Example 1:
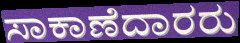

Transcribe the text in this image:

ಸಾಕಾಣೆದಾರರು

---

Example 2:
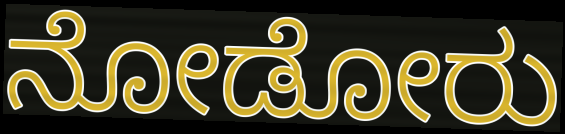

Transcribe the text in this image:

ನೋಡೋರು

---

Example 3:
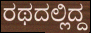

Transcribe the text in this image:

ರಥದಲ್ಲಿದ್ದ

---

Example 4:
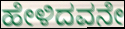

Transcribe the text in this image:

ಹೇಳಿದವನೇ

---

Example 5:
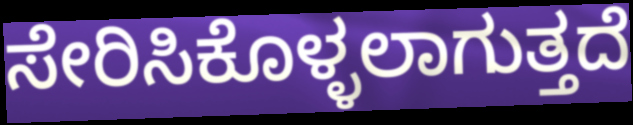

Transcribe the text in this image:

ಸೇರಿಸಿಕೊಳ್ಳಲಾಗುತ್ತದೆ